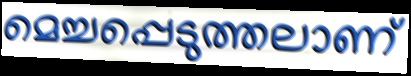
മെച്ചപ്പെടുത്തലാണ്